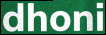
dhoni